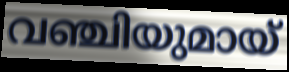
വഞ്ചിയുമായ്